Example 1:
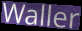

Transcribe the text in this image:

Waller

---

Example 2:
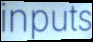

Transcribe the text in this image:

inputs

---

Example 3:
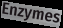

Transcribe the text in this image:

Enzymes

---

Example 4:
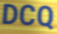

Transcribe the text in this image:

DCQ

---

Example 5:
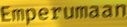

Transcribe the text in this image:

Emperumaan